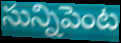
సున్నిపెంట